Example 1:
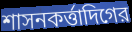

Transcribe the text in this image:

শাসনকর্ত্তাদিগের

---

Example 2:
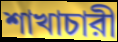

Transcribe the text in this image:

শাখাচারী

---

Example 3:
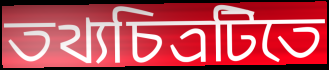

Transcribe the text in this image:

তথ্যচিত্রটিতে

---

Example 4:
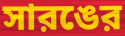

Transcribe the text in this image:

সারঙের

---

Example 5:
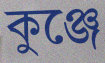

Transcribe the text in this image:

কুঞ্জে